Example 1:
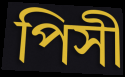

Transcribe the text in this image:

পিসী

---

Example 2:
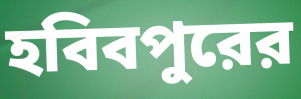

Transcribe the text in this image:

হবিবপুরের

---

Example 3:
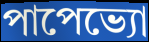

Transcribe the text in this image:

পাপেভ্যো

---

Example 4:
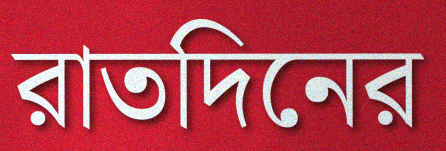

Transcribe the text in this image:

রাতদিনের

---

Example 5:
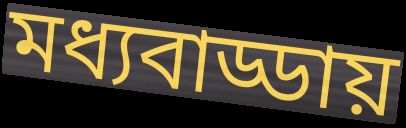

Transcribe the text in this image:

মধ্যবাড্ডায়